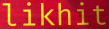
likhit